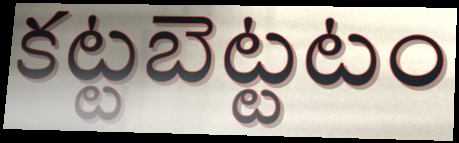
కట్టబెట్టటం